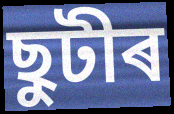
ছুটীৰ